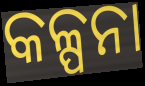
କଳ୍ପନା